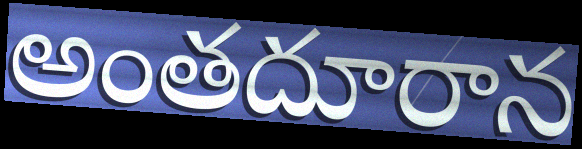
అంతదూరాన